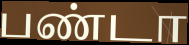
பண்டா